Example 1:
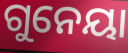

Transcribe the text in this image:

ଗୁନେୟା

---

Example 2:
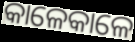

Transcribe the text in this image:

କାଳେକାଳେ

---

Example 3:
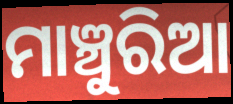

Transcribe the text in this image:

ମାଞ୍ଚୁରିଆ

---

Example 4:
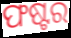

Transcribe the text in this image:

ଫଷ୍ଟର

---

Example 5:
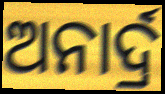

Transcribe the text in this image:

ଅନାର୍ଦ୍ର